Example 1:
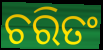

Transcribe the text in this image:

ଚରିତଂ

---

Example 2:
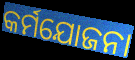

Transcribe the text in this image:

କର୍ମଯୋଜନା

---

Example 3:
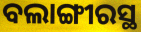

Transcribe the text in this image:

ବଲାଙ୍ଗୀରସ୍ଥ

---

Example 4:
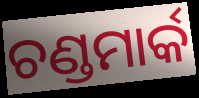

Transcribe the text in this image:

ଚଣ୍ଡମାର୍କ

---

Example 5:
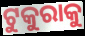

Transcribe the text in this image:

ଟୁକୁରାକୁ